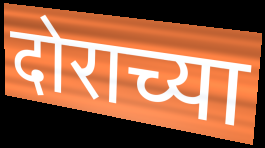
दोराच्या